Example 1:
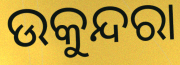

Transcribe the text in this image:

ଉକୁନ୍ଦରା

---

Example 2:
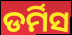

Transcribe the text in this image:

ଡର୍ମିସ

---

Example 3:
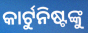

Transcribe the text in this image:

କାର୍ଟୁନିଷ୍ଟଙ୍କୁ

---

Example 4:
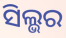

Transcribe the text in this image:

ସିଲ୍ଭର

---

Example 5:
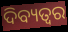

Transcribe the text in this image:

ଦିବ୍ୟତ୍ବର